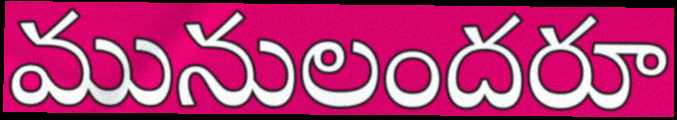
మునులందరూ